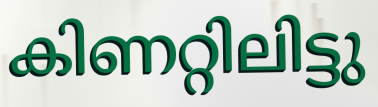
കിണറ്റിലിട്ടു